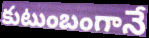
కుటుంబంగానే